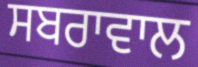
ਸਬਰਾਵਾਲ